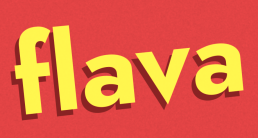
flava